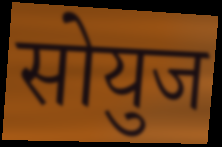
सोयुज